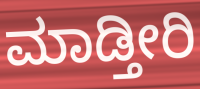
ಮಾಡ್ತೀರಿ